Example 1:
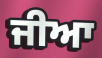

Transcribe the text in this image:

ਜੀਆ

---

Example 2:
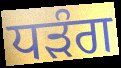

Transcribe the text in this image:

ਧੜੰਗ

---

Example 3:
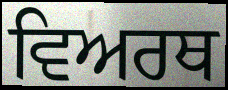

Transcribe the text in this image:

ਵਿਅਰਥ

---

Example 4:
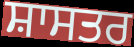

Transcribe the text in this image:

ਸ਼ਾਸਤਰ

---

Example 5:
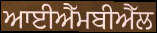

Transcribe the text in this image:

ਆਈਐੱਮਬੀਐੱਲ